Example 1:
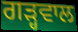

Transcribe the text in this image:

ਗੜ੍ਹਵਾਲ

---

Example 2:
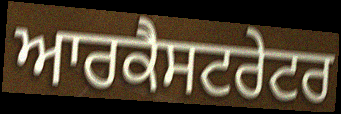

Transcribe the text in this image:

ਆਰਕੈਸਟਰੇਟਰ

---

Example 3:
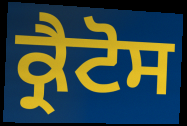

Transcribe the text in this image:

ਕ੍ਰੈਟੋਸ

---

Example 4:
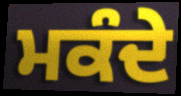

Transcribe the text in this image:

ਮਕੰਦੇ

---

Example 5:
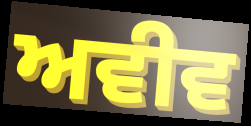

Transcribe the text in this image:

ਅਵੀਵ